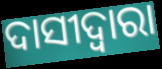
ଦାସୀଦ୍ୱାରା